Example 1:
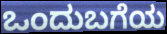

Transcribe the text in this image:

ಒಂದುಬಗೆಯ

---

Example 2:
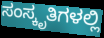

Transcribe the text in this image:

ಸಂಸ್ಕೃತಿಗಳಲ್ಲಿ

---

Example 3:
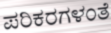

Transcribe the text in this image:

ಪರಿಕರಗಳಂತೆ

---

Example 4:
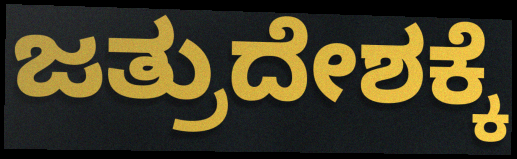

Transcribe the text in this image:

ಜತ್ರುದೇಶಕ್ಕೆ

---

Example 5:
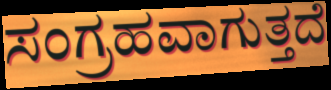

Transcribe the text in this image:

ಸಂಗ್ರಹವಾಗುತ್ತದೆ